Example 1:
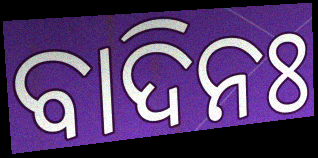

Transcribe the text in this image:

ବାଦିନଃ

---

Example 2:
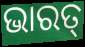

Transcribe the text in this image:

ଭାରତ୍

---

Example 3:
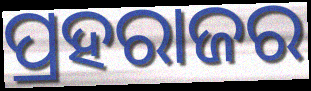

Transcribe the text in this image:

ପ୍ରହରାଜର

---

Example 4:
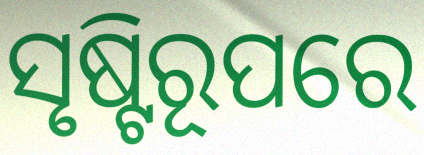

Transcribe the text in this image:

ସୃଷ୍ଟିରୂପରେ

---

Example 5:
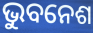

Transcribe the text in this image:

ଭୁବନେଶ